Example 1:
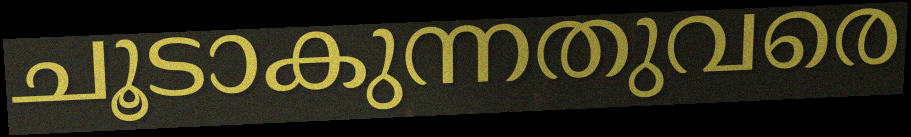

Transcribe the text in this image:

ചൂടാകുന്നതുവരെ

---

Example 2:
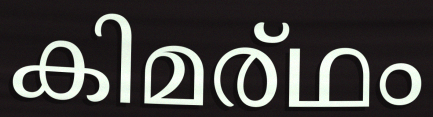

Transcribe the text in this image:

കിമര്ഥം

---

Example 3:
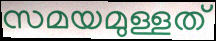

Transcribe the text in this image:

സമയമുള്ളത്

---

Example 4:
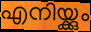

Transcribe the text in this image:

എനിയ്ക്കും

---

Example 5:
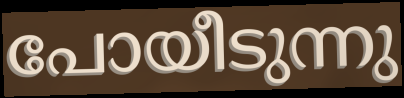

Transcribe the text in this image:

പോയീടുന്നു